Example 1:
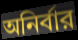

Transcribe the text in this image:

অনির্বার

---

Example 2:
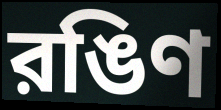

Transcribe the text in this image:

রঙিণ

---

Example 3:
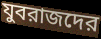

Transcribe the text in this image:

যুবরাজদের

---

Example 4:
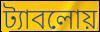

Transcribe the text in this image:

ট্যাবলোয়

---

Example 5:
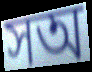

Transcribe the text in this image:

সঅ